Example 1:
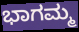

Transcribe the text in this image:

ಭಾಗಮ್ಮ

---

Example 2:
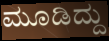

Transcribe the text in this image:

ಮೂಡಿದ್ದು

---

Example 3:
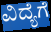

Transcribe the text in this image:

ವಿದ್ಯೆಗೆ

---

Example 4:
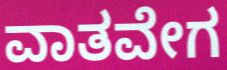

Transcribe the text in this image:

ವಾತವೇಗ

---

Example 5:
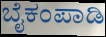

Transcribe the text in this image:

ಬೈಕಂಪಾಡಿ